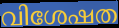
വിശേഷത